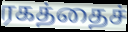
ரகத்தைச்